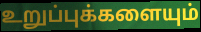
உறுப்புக்களையும்